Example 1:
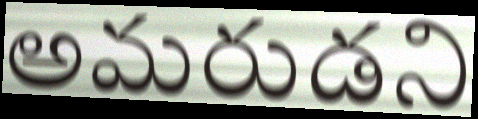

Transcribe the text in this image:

అమరుడని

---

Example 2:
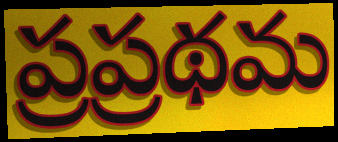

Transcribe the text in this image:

ప్రప్రథమ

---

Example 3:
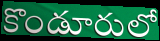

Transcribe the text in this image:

కొండూరులో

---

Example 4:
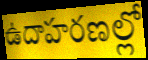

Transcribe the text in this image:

ఉదాహరణల్లో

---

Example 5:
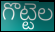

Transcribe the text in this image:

గొట్టెల